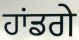
ਹਾਂਡਗੇ